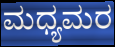
ಮಧ್ಯಮರ